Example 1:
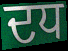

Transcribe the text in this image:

ਦਧ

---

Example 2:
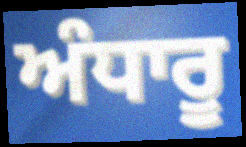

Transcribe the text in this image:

ਅੰਧਾਰੂ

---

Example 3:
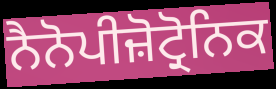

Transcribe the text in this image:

ਨੈਨੋਪੀਜ਼ੋਟ੍ਰੋਨਿਕ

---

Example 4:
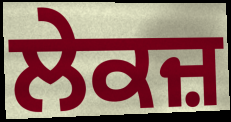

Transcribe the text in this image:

ਲੇਕਜ਼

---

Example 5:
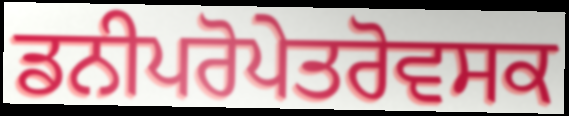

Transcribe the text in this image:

ਡਨੀਪਰੋਪੇਤਰੋਵਸਕ